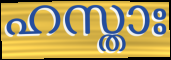
ഹസ്താഃ